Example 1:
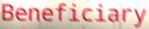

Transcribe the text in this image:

Beneficiary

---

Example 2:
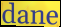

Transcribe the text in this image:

dane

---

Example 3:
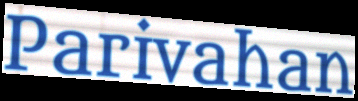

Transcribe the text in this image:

Parivahan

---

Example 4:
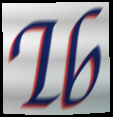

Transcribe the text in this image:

Ib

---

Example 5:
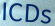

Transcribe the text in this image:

ICDs